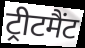
ट्रीटमैंट